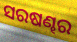
ସରଷଣ୍ଢର